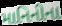
માનિનીના